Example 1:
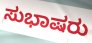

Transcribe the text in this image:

ಸುಭಾಷರು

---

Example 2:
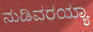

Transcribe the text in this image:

ನುಡಿವರಯ್ಯಾ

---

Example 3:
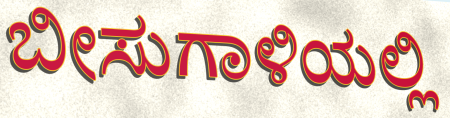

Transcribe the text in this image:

ಬೀಸುಗಾಳಿಯಲ್ಲಿ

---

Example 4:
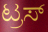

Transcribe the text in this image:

ಟ್ರಸ್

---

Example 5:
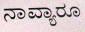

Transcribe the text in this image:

ನಾವ್ಯಾರೂ